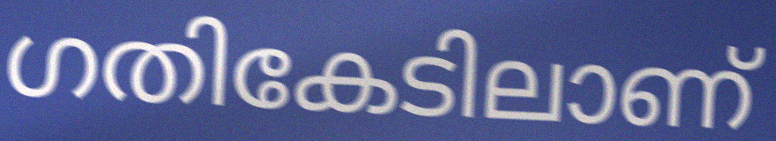
ഗതികേടിലാണ്